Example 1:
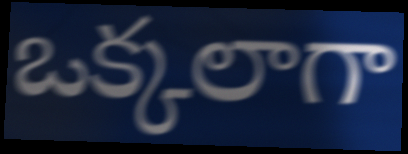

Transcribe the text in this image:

ఒక్కలాగా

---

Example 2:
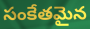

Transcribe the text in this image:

సంకేతమైన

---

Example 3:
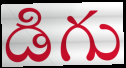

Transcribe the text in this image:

డిగు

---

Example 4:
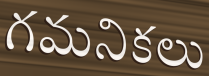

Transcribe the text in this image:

గమనికలు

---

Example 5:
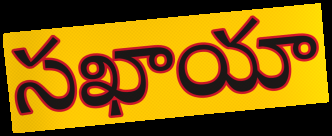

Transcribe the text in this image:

సఖాయా